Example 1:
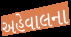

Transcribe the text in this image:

અહેવાલના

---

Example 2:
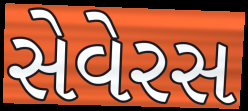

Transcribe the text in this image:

સેવેરસ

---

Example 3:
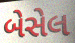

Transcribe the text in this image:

બેસેલ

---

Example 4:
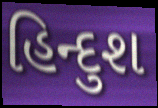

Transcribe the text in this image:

હિન્દુશ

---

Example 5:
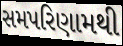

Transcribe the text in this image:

સમપરિણામથી